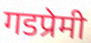
गडप्रेमी